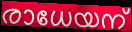
രാധേയന്